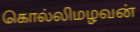
கொல்லிமழவன்